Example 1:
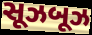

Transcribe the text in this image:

સૂઝબૂઝ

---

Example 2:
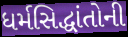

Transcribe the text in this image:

ધર્મસિદ્ધાંતોની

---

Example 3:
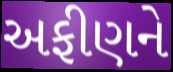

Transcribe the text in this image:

અફીણને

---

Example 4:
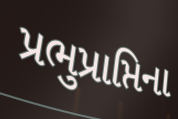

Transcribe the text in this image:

પ્રભુપ્રાપ્તિના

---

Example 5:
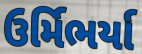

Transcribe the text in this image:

ઉર્મિભર્યા